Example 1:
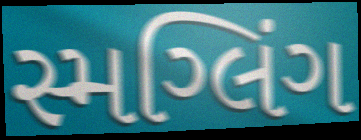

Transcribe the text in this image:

સ્મગ્લિંગ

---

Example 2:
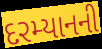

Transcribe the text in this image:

દરમ્યાનની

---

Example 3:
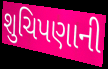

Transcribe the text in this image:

શુચિપણાની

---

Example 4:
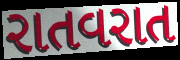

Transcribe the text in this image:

રાતવરાત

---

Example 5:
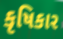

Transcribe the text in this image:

કૃષિકાર